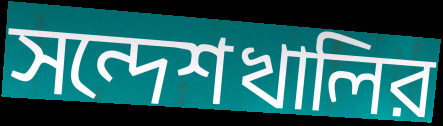
সন্দেশখালির